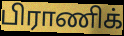
பிராணிக்